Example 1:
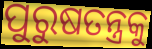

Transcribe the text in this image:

ପୁରୁଷତନ୍ତ୍ରକୁ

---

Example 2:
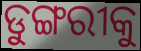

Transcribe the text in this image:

ଡୁଙ୍ଗରୀକୁ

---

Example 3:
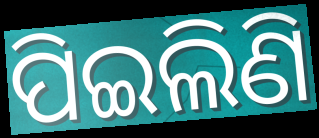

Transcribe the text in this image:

ପିଇଲିଣି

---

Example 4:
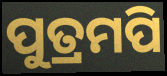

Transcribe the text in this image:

ପୁତ୍ରମପି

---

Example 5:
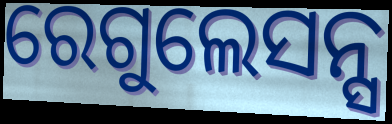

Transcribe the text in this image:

ରେଗୁଲେସନ୍ସ